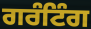
ਗਰੰਟਿੰਗ